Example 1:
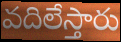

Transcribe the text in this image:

వదిలేస్తారు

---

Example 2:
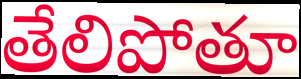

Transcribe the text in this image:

తేలిపోతూ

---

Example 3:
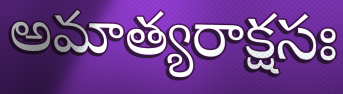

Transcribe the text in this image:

అమాత్యరాక్షసః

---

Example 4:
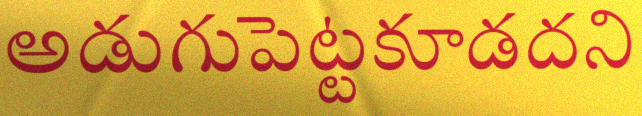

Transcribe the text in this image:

అడుగుపెట్టకూడదని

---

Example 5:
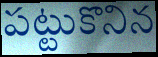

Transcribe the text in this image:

పట్టుకొనిన